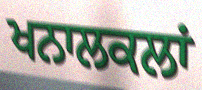
ਖਨਾਲਕਲਾਂ